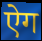
ऐग